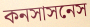
কনসাসনেস